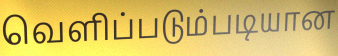
வெளிப்படும்படியான